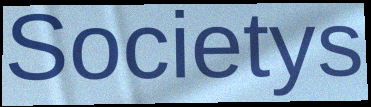
Societys